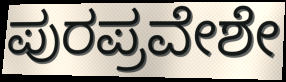
ಪುರಪ್ರವೇಶೇ